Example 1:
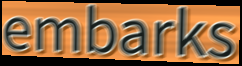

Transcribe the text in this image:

embarks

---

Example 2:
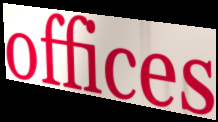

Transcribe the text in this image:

offices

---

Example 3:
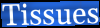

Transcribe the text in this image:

Tissues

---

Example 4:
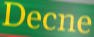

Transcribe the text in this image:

Decne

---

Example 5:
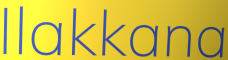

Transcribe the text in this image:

Ilakkana